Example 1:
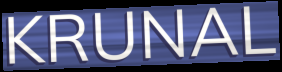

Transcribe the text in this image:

KRUNAL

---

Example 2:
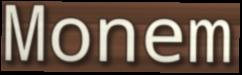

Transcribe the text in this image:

Monem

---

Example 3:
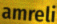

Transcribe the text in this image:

amreli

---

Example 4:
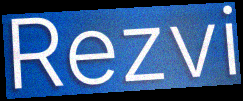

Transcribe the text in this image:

Rezvi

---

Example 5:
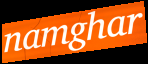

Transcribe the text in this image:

namghar